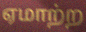
ஏமாற்ற